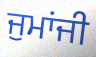
ਜੁਮਾਂਜੀ